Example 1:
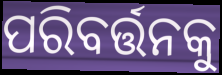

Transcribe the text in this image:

ପରିବର୍ତ୍ତନକୁ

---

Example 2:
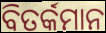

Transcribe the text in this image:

ବିତର୍କମାନ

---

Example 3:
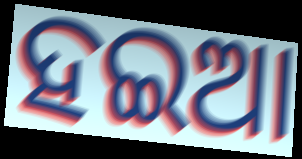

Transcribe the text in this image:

ହଇଆ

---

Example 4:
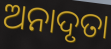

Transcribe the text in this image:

ଅନାଦୃତା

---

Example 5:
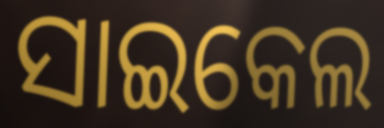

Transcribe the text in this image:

ସାଇକେଲ